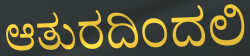
ಆತುರದಿಂದಲಿ